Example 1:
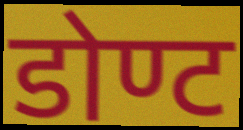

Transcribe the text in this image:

डोण्ट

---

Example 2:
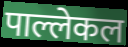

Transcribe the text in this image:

पाल्लेकल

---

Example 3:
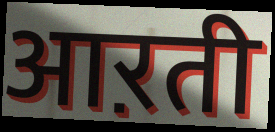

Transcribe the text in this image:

आऱती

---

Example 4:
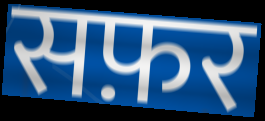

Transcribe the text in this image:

सफ़र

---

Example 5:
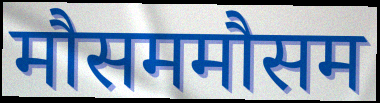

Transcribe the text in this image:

मौसममौसम